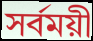
সর্বময়ী